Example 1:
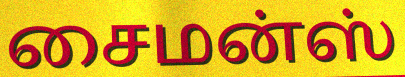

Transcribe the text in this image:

சைமன்ஸ்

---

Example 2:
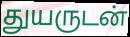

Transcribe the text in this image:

துயருடன்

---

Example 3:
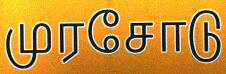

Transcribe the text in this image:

முரசோடு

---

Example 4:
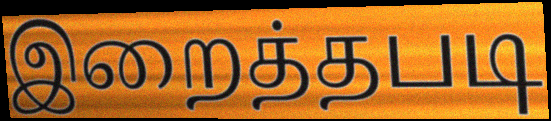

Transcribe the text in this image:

இறைத்தபடி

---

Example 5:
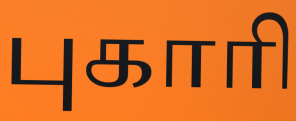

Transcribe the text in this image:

புகாரி